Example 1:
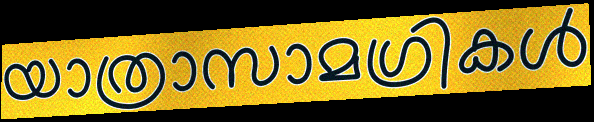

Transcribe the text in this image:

യാത്രാസാമഗ്രികൾ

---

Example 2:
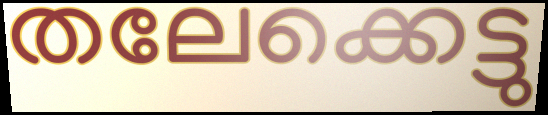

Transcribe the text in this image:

തലേക്കെട്ടു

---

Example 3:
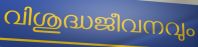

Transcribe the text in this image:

വിശുദ്ധജീവനവും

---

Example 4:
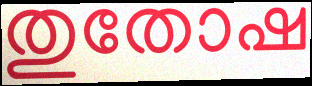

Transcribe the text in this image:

തുതോഷ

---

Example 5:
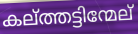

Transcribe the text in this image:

കല്ത്തട്ടിന്മേല്